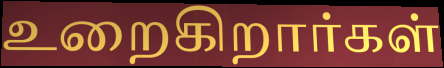
உறைகிறார்கள்